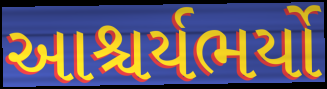
આશ્ચર્યભર્યો